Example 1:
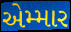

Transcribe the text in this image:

એમ્માર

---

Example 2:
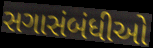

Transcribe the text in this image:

સગાસંબંધીઓ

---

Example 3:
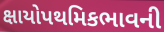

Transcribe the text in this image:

ક્ષાયોપથમિકભાવની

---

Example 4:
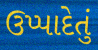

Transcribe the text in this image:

ઉપ્પાદેતું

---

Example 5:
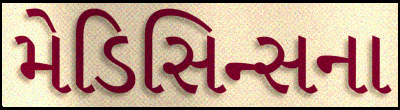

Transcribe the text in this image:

મેડિસિન્સના